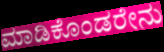
ಮಾಡಿಕೊಂಡರೇನು